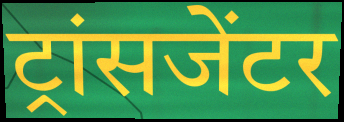
ट्रांसजेंटर